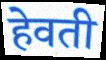
हेवती